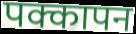
पक्कापन